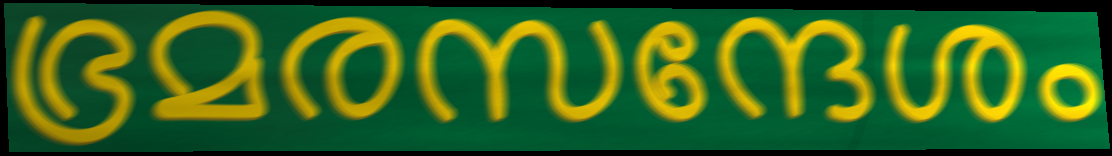
ഭ്രമരസന്ദേശം